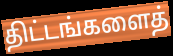
திட்டங்களைத்